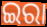
ଇରା